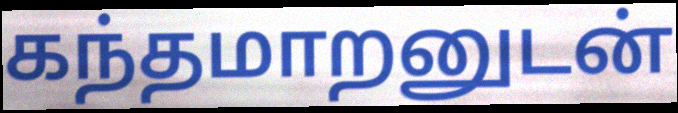
கந்தமாறனுடன்